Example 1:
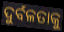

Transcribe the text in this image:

ଦୁର୍ବଳତାକୁ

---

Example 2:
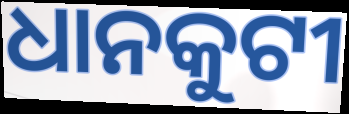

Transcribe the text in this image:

ଧାନକୁଟୀ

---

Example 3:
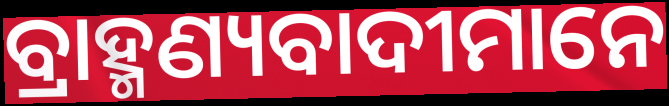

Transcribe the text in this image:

ବ୍ରାହ୍ମଣ୍ୟବାଦୀମାନେ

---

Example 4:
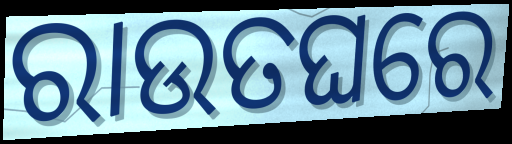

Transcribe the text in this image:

ରାଉତଘରେ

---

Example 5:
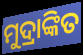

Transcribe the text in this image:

ମୁଦ୍ରାଙ୍କିତ